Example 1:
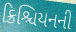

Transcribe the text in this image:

ક્રિશ્ચિયનની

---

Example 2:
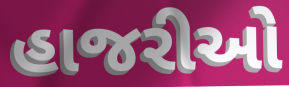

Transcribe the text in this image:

હાજરીઓ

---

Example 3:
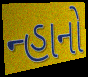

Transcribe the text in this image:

ન્હાનો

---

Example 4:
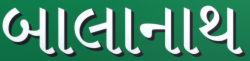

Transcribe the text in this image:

બાલાનાથ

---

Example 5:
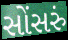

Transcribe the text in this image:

સોંસરું